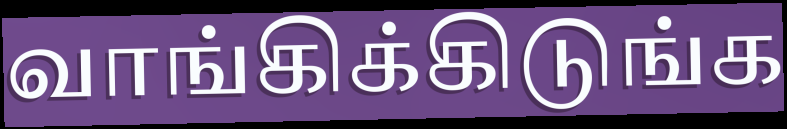
வாங்கிக்கிடுங்க